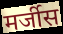
मर्जीस